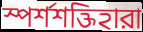
স্পর্শশক্তিহারা